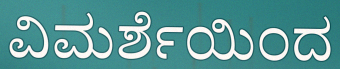
ವಿಮರ್ಶೆಯಿಂದ